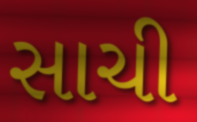
સાચી